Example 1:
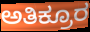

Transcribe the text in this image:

ಅತಿಕ್ರೂರ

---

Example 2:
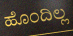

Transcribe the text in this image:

ಹೊಂದಿಲ್ಲ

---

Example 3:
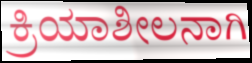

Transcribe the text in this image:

ಕ್ರಿಯಾಶೀಲನಾಗಿ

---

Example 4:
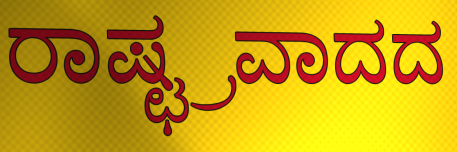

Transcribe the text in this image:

ರಾಷ್ಟ್ರವಾದದ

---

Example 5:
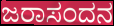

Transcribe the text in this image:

ಜರಾಸಂದನ